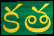
కత